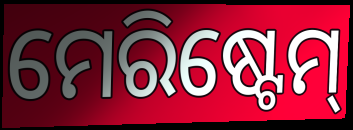
ମେରିଷ୍ଟେମ୍